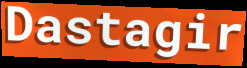
Dastagir